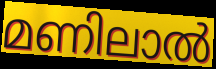
മണിലാൽ